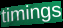
timings